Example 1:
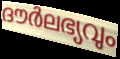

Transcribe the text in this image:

ദൗർലഭ്യവും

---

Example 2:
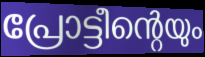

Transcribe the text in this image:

പ്രോട്ടീന്റെയും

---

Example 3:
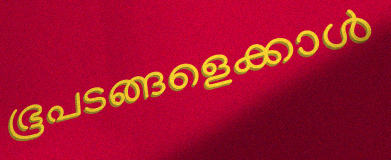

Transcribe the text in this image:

ഭൂപടങ്ങളെക്കാൾ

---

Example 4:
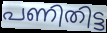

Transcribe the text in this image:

പണിതിട്ട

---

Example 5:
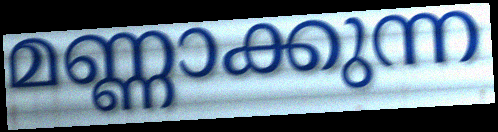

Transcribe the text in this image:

മണ്ണാക്കുന്ന